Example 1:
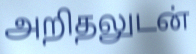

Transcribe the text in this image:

அறிதலுடன்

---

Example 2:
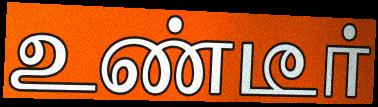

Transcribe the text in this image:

உண்டீர்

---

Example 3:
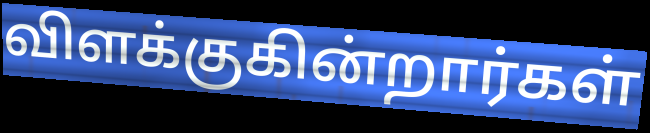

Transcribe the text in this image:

விளக்குகின்றார்கள்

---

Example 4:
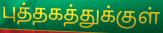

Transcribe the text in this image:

புத்தகத்துக்குள்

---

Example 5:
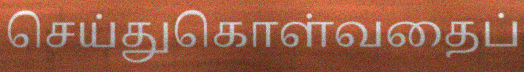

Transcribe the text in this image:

செய்துகொள்வதைப்